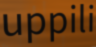
uppili